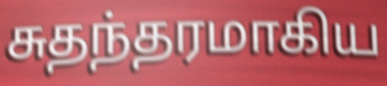
சுதந்தரமாகிய